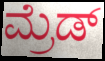
ಮ್ರೆಡ್